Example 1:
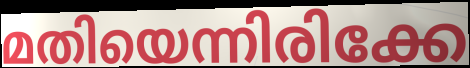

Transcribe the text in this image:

മതിയെന്നിരിക്കേ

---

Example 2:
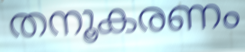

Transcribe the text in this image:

തനൂകരണം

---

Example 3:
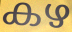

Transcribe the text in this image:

കഴ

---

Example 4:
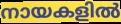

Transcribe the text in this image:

നായകളിൽ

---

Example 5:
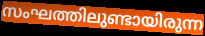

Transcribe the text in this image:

സംഘത്തിലുണ്ടായിരുന്ന